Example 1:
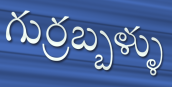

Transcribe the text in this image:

గుర్రబ్బళ్ళు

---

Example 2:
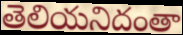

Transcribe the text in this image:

తెలియనిదంతా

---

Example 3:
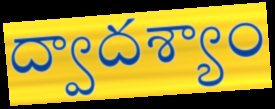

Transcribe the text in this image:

ద్వాదశ్యాం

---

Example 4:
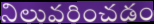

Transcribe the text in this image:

నిలువరించడం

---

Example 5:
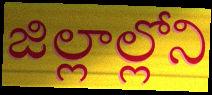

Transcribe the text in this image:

జిల్లాల్లోని